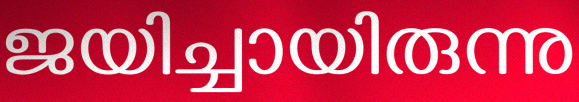
ജയിച്ചായിരുന്നു